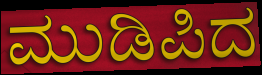
ಮುಡಿಪಿದ